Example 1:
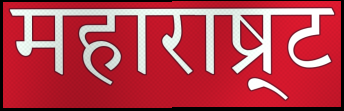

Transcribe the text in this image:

महाराष्र्ट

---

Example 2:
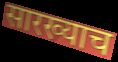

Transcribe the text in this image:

सारख्याच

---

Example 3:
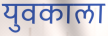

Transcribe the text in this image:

युवकाला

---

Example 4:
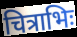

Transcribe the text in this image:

चित्राभिः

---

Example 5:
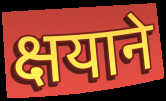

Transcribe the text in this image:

क्षयाने